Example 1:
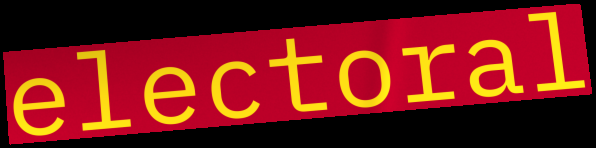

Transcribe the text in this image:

electoral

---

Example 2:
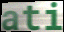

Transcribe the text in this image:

ati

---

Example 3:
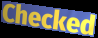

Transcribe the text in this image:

Checked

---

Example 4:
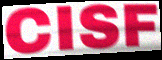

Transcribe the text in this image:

CISF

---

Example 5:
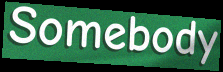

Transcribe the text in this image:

Somebody